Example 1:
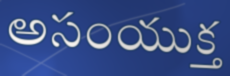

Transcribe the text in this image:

అసంయుక్త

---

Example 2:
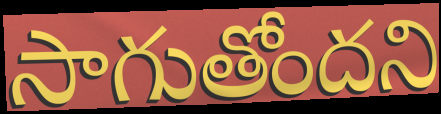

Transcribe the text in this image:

సాగుతోందని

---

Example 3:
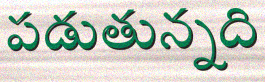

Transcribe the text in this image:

పడుతున్నది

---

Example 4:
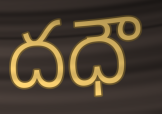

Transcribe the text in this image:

దధౌ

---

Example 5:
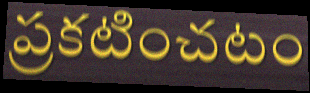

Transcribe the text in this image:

ప్రకటించటం